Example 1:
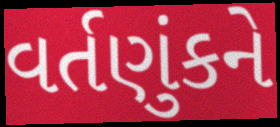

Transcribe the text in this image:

વર્તણુંકને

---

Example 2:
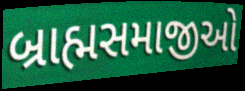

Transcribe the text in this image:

બ્રાહ્મસમાજીઓ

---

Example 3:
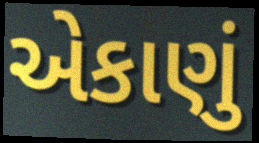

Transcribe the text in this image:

એકાણું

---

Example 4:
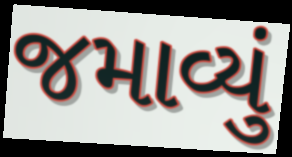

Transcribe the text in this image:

જમાવ્યું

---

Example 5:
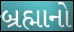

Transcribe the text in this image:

બ્રહ્માનો